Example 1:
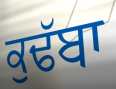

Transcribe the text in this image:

ਕੁਢੱਬਾ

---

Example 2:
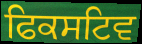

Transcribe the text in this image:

ਫਿਕਸਟਿਵ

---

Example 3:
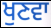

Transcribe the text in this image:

ਖੁਣਵਾ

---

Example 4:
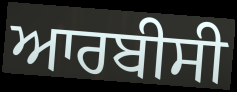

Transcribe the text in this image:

ਆਰਬੀਸੀ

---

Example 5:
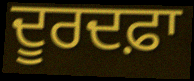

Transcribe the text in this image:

ਦੂਰਦਫ਼ਾ